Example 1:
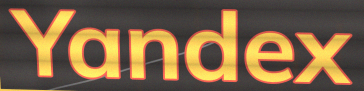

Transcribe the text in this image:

Yandex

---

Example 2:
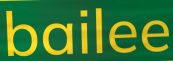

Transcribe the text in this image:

bailee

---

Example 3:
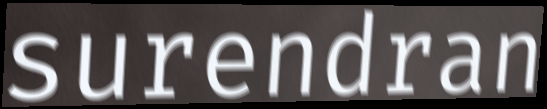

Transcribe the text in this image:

surendran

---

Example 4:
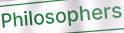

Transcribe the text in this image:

Philosophers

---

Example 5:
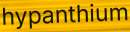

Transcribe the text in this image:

hypanthium